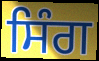
ਸਿੰਗ